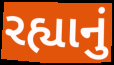
રહ્યાનું